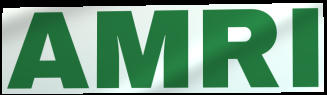
AMRI